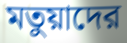
মতুয়াদের